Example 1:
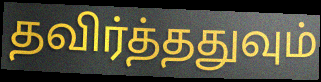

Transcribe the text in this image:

தவிர்த்ததுவும்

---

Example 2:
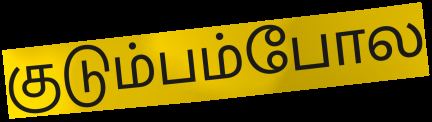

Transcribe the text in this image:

குடும்பம்போல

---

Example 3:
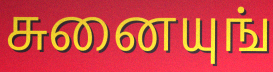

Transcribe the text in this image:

சுனையுங்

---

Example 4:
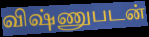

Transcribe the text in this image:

விஷ்ணுபடன்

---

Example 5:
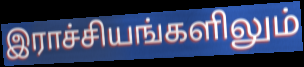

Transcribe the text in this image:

இராச்சியங்களிலும்